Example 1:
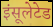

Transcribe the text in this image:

इंसूलेटेड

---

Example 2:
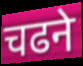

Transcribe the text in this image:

चढने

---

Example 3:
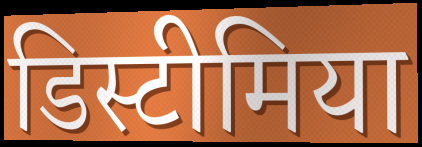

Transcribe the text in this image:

डिस्टीमिया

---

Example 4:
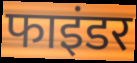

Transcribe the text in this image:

फाइंडर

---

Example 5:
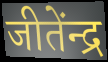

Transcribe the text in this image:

जीतेंन्द्र